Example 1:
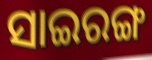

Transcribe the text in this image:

ସାଇରଙ୍ଗ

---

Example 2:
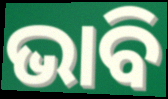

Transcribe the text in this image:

ଭାବି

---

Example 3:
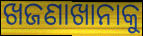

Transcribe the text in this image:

ଖଜଣାଖାନାକୁ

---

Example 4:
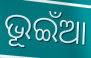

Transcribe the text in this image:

ଭୂଇଁଆ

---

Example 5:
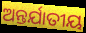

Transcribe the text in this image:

ଅନ୍ତର୍ଯାତୀୟ